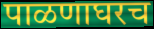
पाळणाघरच